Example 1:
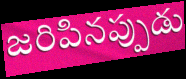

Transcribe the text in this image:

జరిపినప్పుడు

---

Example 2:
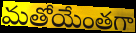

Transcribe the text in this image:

మతోయేంతగా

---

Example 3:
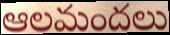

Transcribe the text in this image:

ఆలమందలు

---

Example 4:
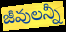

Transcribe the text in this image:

జీవులన్నీ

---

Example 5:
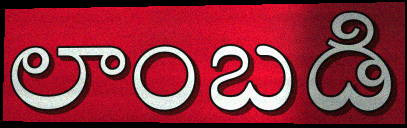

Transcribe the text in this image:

లాంబడి